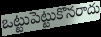
ఒట్టుపెట్టుకొనరాదు